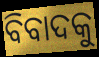
ବିବାଦକୁ